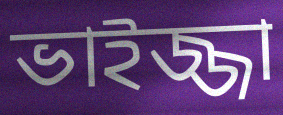
ভাইজ্জা